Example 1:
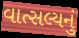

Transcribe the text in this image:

વાત્સલ્યનું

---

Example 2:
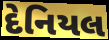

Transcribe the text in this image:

દેનિયલ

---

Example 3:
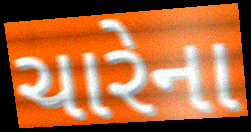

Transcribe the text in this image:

ચારેના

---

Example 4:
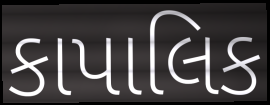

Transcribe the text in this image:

કાપાલિક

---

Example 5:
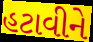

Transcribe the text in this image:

હટાવીને